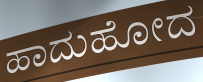
ಹಾದುಹೋದ